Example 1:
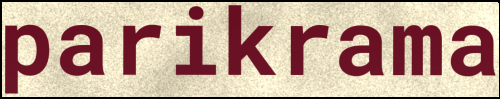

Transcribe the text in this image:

parikrama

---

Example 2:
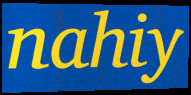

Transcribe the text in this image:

nahiy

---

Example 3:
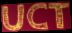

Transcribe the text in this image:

UCT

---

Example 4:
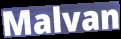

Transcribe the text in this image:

Malvan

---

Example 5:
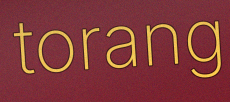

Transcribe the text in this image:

torang